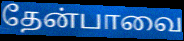
தேன்பாவை